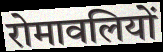
रोमावलियों